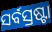
ସର୍ବସ୍ରଷ୍ଟା